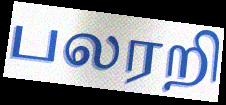
பலரறி